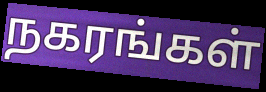
நகரங்கள்